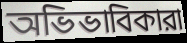
অভিভাবিকারা